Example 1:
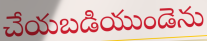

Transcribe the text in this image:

చేయబడియుండెను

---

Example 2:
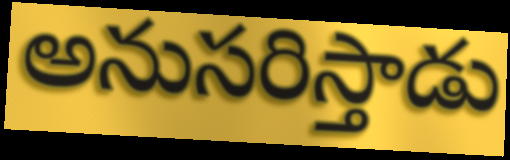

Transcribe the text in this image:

అనుసరిస్తాడు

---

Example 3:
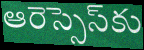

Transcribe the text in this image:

ఆరెస్సెస్‌కు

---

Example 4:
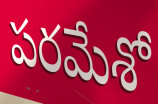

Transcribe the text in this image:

పరమేశో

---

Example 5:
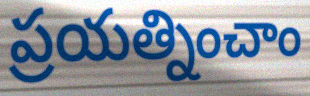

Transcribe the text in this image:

ప్రయత్నించాం